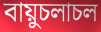
বায়ুচলাচল